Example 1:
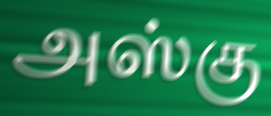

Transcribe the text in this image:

அஸ்கு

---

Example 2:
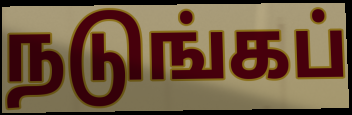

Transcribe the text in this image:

நடுங்கப்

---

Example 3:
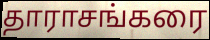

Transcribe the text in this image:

தாராசங்கரை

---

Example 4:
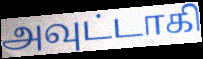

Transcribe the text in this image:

அவுட்டாகி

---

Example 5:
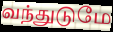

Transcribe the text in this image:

வந்துடுமே